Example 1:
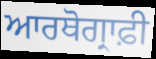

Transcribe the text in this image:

ਆਰਥੋਗ੍ਰਾਫ਼ੀ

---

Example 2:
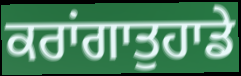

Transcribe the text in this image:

ਕਰਾਂਗਾਤੁਹਾਡੇ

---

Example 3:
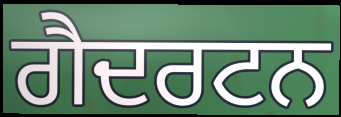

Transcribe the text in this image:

ਗੈਦਰਟਨ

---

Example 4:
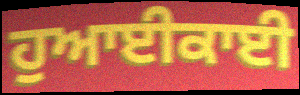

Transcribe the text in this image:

ਹੁਆਈਕਾਈ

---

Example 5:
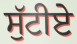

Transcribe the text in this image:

ਸੁੱਟੀਏ